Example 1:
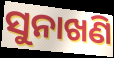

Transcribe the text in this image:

ସୁନାଖଣି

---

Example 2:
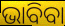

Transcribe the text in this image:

ଭାବିବା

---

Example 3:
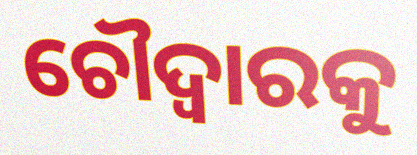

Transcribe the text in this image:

ଚୌଦ୍ୱାରକୁ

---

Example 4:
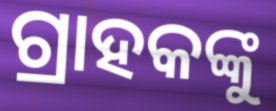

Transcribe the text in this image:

ଗ୍ରାହକଙ୍କୁ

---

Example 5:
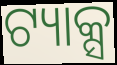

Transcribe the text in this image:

ଟ୍ୟାକ୍ସ